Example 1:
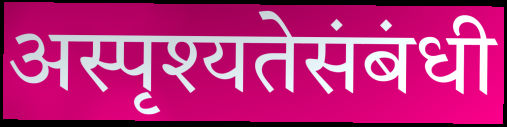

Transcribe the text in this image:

अस्पृश्यतेसंबंधी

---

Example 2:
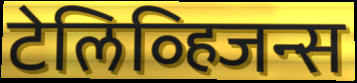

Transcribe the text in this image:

टेलिव्हिजन्स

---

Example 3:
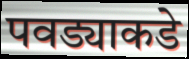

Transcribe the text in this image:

पवड्याकडे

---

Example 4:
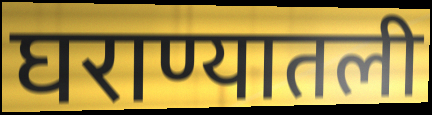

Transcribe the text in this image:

घराण्यातली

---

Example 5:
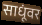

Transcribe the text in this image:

साधूंवर